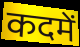
कदमें